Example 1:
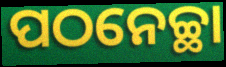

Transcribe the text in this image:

ପଠନେଚ୍ଛା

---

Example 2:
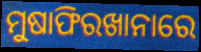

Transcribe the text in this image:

ମୁଷାଫିରଖାନାରେ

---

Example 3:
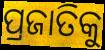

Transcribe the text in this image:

ପ୍ରଜାତିକୁ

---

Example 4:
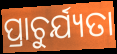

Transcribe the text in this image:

ପ୍ରାଚୁର୍ଯ୍ୟତା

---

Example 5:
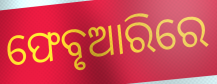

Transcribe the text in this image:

ଫେବୃଆରିରେ